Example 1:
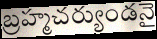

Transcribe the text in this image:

బ్రహ్మచర్యుండనై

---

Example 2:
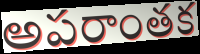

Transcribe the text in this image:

అపరాంతక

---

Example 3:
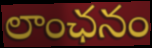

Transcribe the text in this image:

లాంఛనం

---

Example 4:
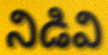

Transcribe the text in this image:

నిడివి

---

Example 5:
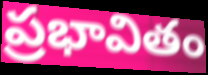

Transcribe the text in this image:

ప్రభావితం